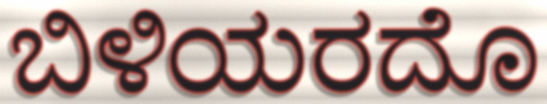
ಬಿಳಿಯರದೊ